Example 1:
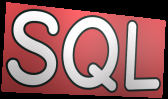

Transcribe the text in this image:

SQL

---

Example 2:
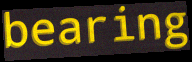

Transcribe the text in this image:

bearing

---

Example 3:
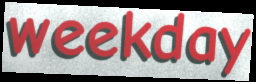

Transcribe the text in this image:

weekday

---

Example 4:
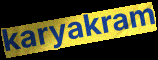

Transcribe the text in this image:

karyakram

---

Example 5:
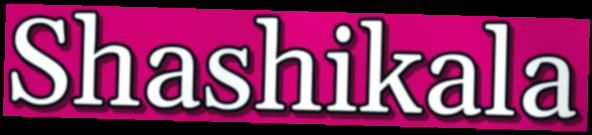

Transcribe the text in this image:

Shashikala